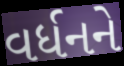
વર્ધનને